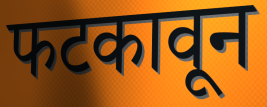
फटकावून